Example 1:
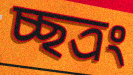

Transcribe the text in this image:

চ্ছত্রং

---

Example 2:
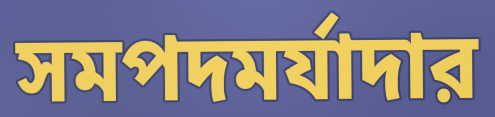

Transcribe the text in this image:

সমপদমর্যাদার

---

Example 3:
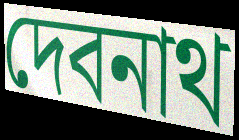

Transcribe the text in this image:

দেবনাথ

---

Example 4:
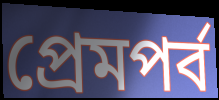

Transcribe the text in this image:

প্রেমপর্ব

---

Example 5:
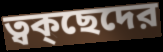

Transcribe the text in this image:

ত্বক্ছেদের